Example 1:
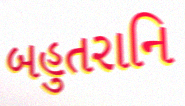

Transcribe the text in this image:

બહુતરાનિ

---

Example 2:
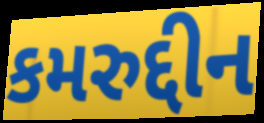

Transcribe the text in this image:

કમરુદ્દીન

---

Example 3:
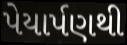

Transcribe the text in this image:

પેયાર્પણથી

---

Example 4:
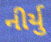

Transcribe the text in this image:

નીર્યુ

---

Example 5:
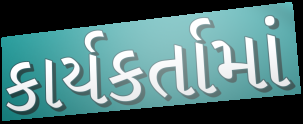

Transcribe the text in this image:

કાર્યકર્તામાં